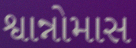
શ્વાન્નોમાસ